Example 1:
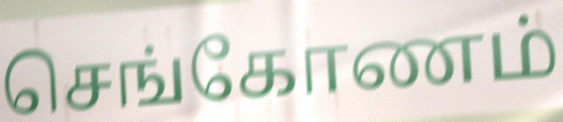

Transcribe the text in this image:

செங்கோணம்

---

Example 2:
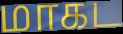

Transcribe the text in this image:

மாகட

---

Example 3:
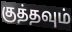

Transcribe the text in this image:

குத்தவும்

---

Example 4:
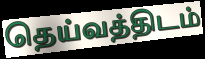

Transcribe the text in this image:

தெய்வத்திடம்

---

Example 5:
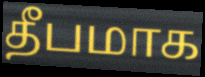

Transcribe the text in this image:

தீபமாக